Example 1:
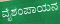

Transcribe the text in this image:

ವೈಶಂಪಾಯನ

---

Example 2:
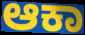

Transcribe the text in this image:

ಆಕಾ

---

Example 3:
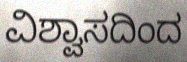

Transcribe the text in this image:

ವಿಶ್ವಾಸದಿಂದ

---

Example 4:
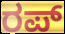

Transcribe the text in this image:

ರಪ್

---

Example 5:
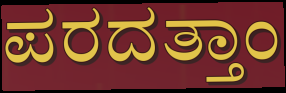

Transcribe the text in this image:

ಪರದತ್ತಾಂ